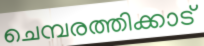
ചെമ്പരത്തിക്കാട്